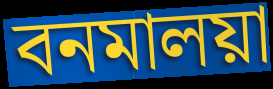
বনমালয়া